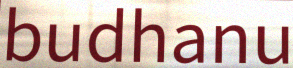
budhanu